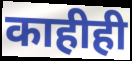
काहीही